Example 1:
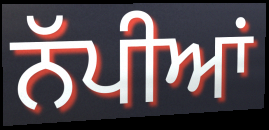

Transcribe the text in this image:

ਨੱਪੀਆਂ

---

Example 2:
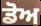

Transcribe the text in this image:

ਡੋਅ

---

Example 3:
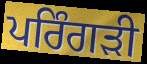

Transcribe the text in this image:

ਪਰਿੰਗੜੀ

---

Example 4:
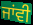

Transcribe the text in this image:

ਜਾਂਵੀ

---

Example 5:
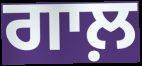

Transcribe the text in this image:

ਗਾਲ਼